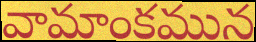
వామాంకమున